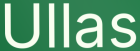
Ullas